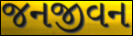
જનજીવન